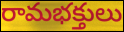
రామభక్తులు